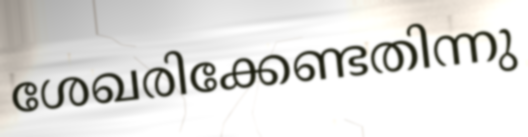
ശേഖരിക്കേണ്ടതിന്നു